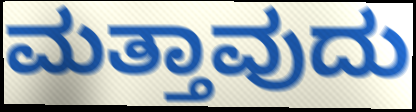
ಮತ್ತಾವುದು